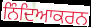
ਨਿੰਦਿਆਕਰਨ